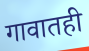
गावातही